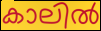
കാലിൽ